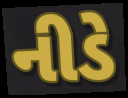
નીડે